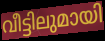
വീട്ടിലുമായി